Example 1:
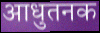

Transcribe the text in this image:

आधुतनक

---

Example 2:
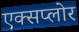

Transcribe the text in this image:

एक्सप्लोर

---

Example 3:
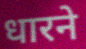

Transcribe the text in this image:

धारने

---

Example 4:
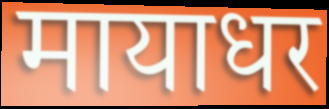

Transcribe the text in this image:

मायाधर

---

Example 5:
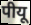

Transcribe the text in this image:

पीयू